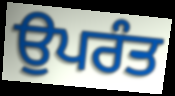
ਉਪਰੰਤ